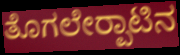
ತೊಗಲೇರ‍್ಪಾಟಿನ